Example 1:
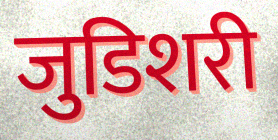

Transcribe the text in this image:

जुडिशरी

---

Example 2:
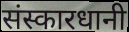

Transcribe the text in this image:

संस्कारधानी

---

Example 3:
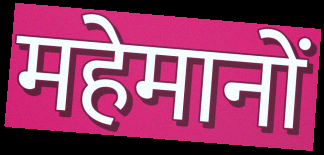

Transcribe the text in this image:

महेमानों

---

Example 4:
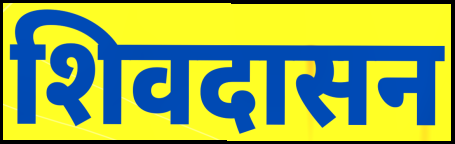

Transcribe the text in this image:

शिवदासन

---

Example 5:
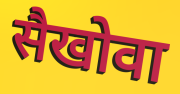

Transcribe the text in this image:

सैखोवा